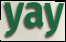
yay